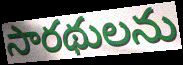
సారథులను